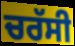
ਚਰੱਸੀ